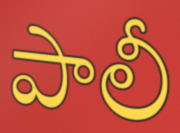
పాలీ